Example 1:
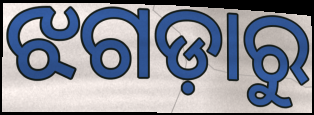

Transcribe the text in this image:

ଝଗଡ଼ାରୁ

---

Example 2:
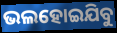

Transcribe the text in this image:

ଭଲହୋଇଯିବୁ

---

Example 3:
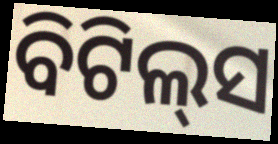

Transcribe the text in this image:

ବିଟିଲ୍‌ସ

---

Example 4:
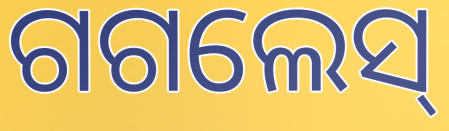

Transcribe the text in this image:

ଗଗଲେସ୍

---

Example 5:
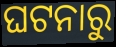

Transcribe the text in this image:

ଘଟନାରୁ